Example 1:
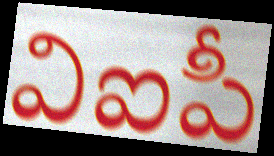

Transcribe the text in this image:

విఐపీ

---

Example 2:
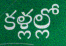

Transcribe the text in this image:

కళ్లల్లో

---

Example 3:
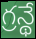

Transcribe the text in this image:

గ్రన్థే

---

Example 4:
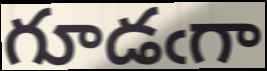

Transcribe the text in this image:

గూడఁగా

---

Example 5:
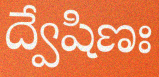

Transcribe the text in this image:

ద్వేషిణః